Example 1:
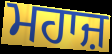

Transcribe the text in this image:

ਮਹਾਜ਼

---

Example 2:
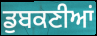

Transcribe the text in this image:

ਡੁਬਕਣੀਆਂ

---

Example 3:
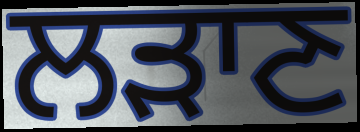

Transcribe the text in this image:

ਲੜਾਣ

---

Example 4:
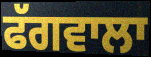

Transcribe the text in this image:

ਫੱਗਵਾਲਾ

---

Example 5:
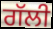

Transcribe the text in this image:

ਗੱਲੀ